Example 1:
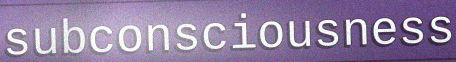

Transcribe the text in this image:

subconsciousness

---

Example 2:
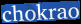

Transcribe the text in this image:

chokrao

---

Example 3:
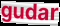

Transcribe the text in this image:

gudar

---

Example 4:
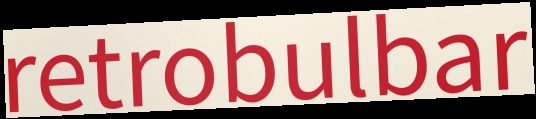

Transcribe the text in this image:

retrobulbar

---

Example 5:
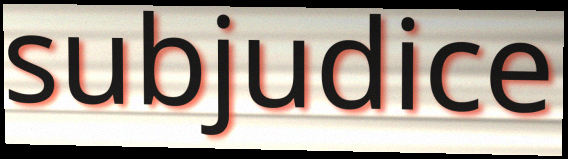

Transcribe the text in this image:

subjudice